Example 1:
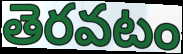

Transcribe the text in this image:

తెరవటం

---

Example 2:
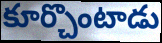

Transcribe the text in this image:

కూర్చొంటాడు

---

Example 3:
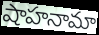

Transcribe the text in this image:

షాహనామా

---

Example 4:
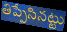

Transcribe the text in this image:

తిప్పేసినట్టు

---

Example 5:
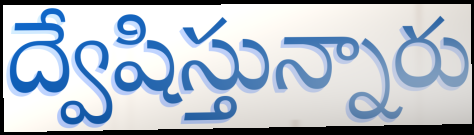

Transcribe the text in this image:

ద్వేషిస్తున్నారు